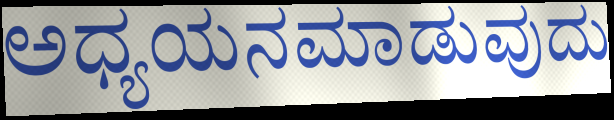
ಅಧ್ಯಯನಮಾಡುವುದು